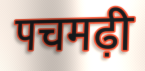
पचमढ़ी